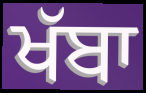
ਖੱਬਾ